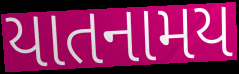
યાતનામય